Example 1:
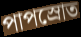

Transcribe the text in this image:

পাপস্রোত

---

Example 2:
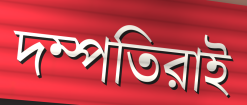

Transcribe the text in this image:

দম্পতিরাই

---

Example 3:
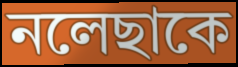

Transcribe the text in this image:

নলেছাকে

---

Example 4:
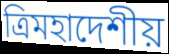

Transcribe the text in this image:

ত্রিমহাদেশীয়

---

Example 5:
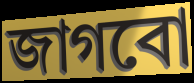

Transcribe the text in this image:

জাগবো